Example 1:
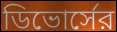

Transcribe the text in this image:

ডিভোর্সের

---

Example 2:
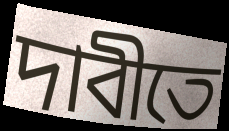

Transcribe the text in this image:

দাবীতে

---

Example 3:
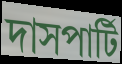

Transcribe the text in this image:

দাসপার্টি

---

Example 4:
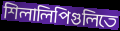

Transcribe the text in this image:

শিলালিপিগুলিতে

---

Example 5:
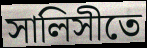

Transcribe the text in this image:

সালিসীতে